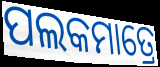
ପଲକମାତ୍ରେ